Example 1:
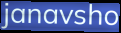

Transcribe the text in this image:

janavsho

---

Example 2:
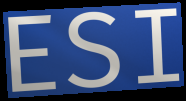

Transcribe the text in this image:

ESI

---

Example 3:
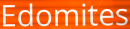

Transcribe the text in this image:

Edomites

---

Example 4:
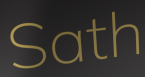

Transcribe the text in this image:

Sath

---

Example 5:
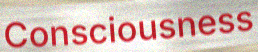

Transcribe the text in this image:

Consciousness